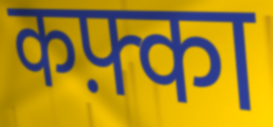
कफ़्का